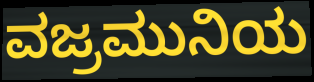
ವಜ್ರಮುನಿಯ